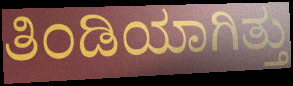
ತಿಂಡಿಯಾಗಿತ್ತು